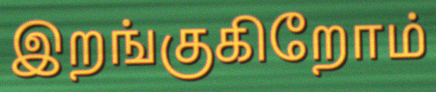
இறங்குகிறோம்